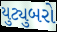
યુટ્યુબરો